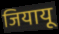
जियायू